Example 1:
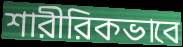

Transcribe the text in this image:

শারীরিকভাবে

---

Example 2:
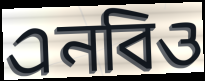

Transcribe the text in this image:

এনবিও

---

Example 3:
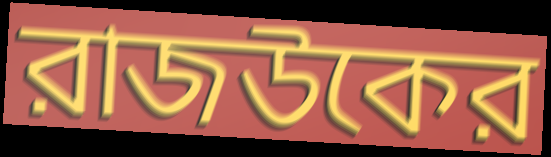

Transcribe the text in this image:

রাজউকের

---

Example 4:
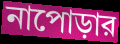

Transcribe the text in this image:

নাপোড়ার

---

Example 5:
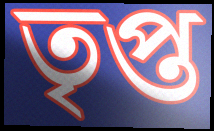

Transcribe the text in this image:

তৃপ্ত